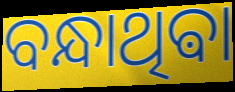
ବନ୍ଧାଥିଵା